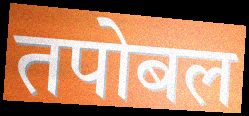
तपोबल